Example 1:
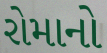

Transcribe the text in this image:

રોમાનો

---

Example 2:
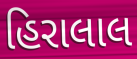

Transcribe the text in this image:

હિરાલાલ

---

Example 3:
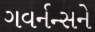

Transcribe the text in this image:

ગવર્નન્સને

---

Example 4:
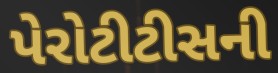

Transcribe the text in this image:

પેરોટીટીસની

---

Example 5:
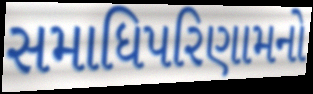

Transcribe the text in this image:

સમાધિપરિણામનો